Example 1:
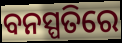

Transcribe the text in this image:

ବନସ୍ପତିରେ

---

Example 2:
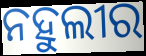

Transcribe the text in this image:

ନହୁଲୀର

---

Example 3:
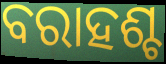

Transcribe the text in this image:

ବରାହଶ୍ଚ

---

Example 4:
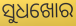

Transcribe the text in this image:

ସୁଧଖୋର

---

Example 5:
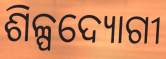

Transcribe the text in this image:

ଶିଳ୍ପଦ୍ୟୋଗୀ